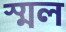
স্মল